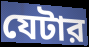
যেটার